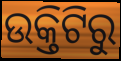
ଉକ୍ତିଟିରୁ